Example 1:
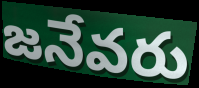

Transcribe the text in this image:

జనేవరు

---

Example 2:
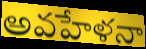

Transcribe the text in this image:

అవహేళనా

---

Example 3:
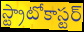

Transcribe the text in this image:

స్ట్రాటోకాస్టర్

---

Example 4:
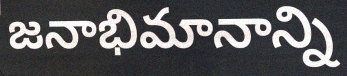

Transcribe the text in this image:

జనాభిమానాన్ని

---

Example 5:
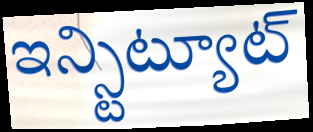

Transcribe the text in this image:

ఇన్స్టిట్యూట్